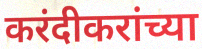
करंदीकरांच्या